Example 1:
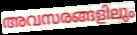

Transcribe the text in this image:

അവസരങ്ങളിലും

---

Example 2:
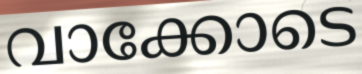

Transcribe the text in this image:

വാക്കോടെ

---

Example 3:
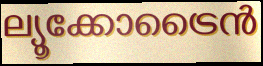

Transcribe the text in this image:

ല്യൂക്കോട്രൈൻ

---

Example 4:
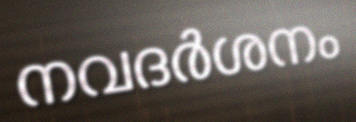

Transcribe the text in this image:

നവദർശനം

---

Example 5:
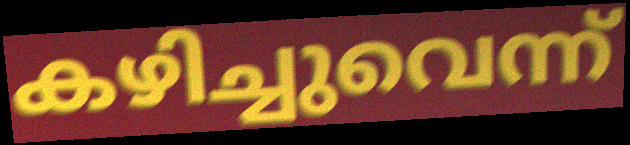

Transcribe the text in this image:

കഴിച്ചുവെന്ന്